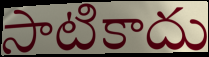
సాటికాదు